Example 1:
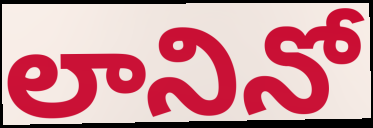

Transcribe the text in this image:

లానినో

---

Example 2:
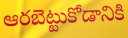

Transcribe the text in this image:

ఆరబెట్టుకోడానికి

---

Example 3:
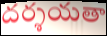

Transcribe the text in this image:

దర్శయతా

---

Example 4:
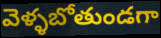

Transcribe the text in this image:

వెళ్ళబోతుండగా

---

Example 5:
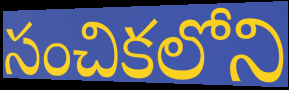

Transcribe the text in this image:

సంచికలోని